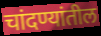
चांदण्यांतील